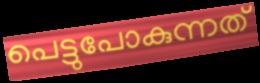
പെട്ടുപോകുന്നത്